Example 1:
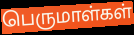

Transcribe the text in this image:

பெருமாள்கள்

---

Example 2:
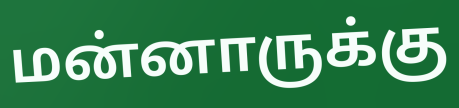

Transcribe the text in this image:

மன்னாருக்கு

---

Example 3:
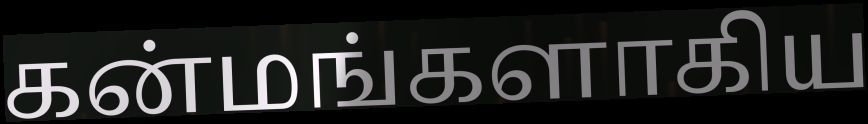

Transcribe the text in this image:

கன்மங்களாகிய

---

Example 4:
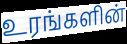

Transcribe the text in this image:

உரங்களின்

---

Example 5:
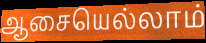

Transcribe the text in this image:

ஆசையெல்லாம்